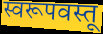
स्वरूपवस्तू